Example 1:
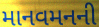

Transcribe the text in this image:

માનવમનની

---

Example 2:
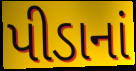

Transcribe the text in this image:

પીડાનાં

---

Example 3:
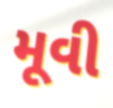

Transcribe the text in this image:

મૂવી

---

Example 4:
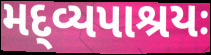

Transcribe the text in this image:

મદ્વ્યપાશ્રયઃ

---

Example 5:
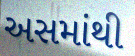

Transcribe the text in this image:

અસમાંથી